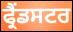
ਫ੍ਰੈਂਡਸਟਰ